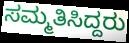
ಸಮ್ಮತಿಸಿದ್ದರು